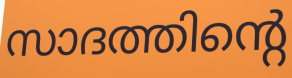
സാദത്തിന്റെ